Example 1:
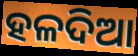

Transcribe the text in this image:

ହଳଦିଆ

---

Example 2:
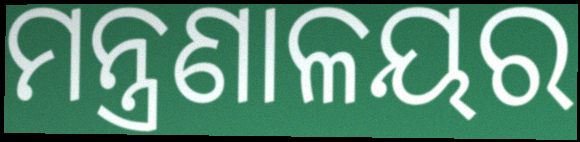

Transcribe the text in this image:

ମନ୍ତ୍ରଣାଳୟର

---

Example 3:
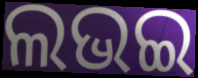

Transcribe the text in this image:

ଲଭଇ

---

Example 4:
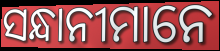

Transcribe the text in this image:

ସନ୍ଧାନୀମାନେ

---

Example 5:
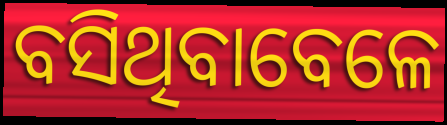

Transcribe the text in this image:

ବସିଥିବାବେଳେ